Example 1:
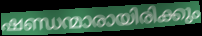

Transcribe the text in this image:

ഷണ്ഡന്മാരായിരിക്കും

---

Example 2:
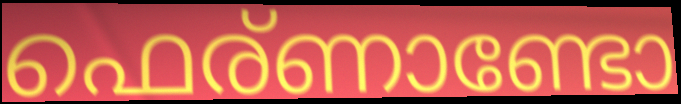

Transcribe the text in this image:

ഫെര്ണാണ്ടോ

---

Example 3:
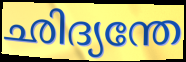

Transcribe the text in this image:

ഛിദ്യന്തേ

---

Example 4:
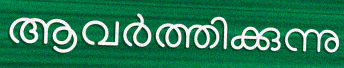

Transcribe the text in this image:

ആവർത്തിക്കുന്നു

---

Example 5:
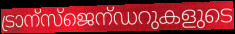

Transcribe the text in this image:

ട്രാന്സ്ജെന്ഡറുകളുടെ